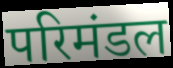
परिमंडल